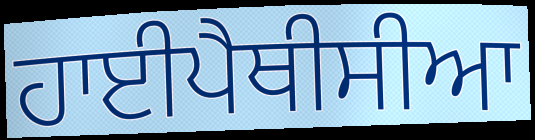
ਹਾਈਪੈਥੀਸੀਆ